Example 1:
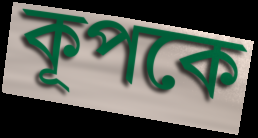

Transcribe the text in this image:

কূপকে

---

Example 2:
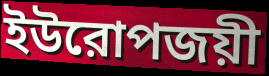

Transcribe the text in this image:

ইউরোপজয়ী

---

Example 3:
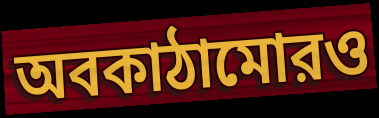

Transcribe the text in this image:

অবকাঠামোরও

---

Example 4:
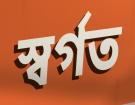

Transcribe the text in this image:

স্বর্গত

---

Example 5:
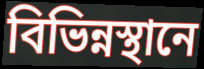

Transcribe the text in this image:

বিভিন্নস্থানে